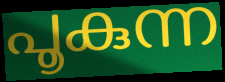
പൂകുന്ന